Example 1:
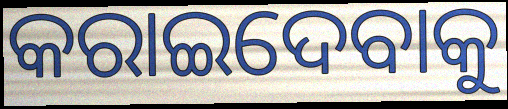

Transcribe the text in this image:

କରାଇଦେବାକୁ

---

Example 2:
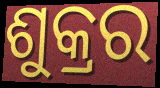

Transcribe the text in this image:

ଶୁକ୍ରର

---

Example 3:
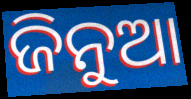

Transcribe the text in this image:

ଜିନୁଆ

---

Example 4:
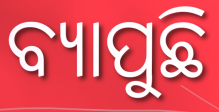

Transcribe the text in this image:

ବ୍ୟାପୁଛି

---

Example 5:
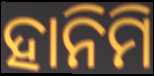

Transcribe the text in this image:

ହାନିମି